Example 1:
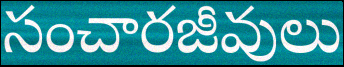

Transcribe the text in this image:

సంచారజీవులు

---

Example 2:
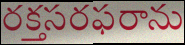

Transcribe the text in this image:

రక్తసరఫరాను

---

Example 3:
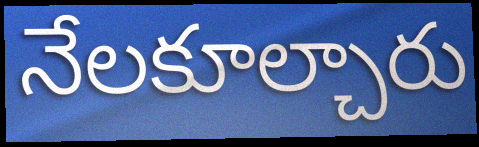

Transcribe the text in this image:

నేలకూల్చారు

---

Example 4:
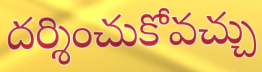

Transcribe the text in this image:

దర్శించుకోవచ్చు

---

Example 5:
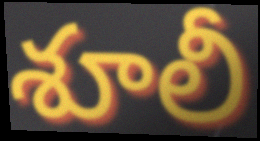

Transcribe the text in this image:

శూలీ